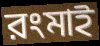
রংমাই